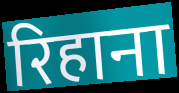
रिहाना